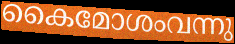
കൈമോശംവന്നു